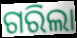
ଗରିଲା